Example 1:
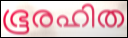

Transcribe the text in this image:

ഭൂരഹിത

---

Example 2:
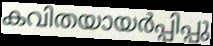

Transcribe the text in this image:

കവിതയായർപ്പിപ്പു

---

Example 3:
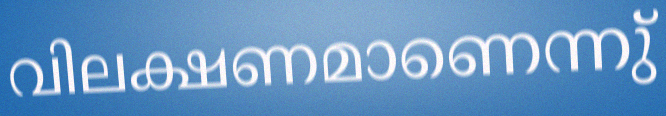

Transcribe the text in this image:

വിലക്ഷണമാണെന്നു്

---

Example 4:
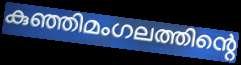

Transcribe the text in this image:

കുഞ്ഞിമംഗലത്തിന്റെ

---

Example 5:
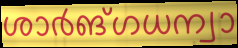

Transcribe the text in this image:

ശാർങ്ഗധന്വാ